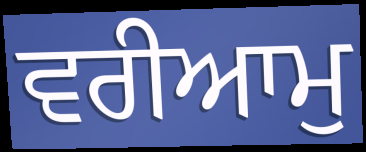
ਵਰੀਆਮੁ